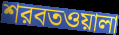
শরবতওয়ালা